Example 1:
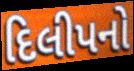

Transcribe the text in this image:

દિલીપનો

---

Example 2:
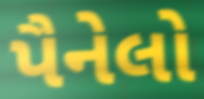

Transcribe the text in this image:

પૈનેલો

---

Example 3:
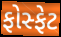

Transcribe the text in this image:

ફોસ્ફેટ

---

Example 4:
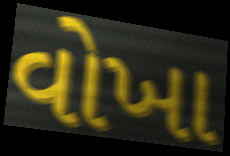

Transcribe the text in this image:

વોખા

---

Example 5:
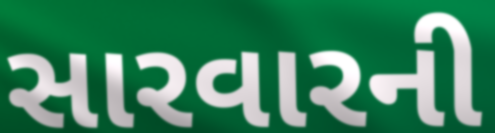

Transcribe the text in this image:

સારવારની